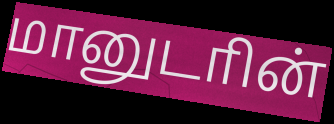
மானுடரின்